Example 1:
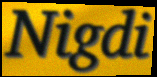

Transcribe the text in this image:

Nigdi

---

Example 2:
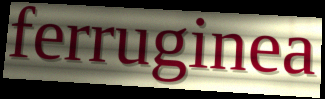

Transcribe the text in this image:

ferruginea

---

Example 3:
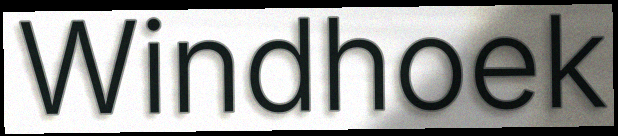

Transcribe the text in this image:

Windhoek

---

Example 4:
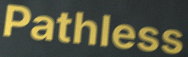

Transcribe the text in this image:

Pathless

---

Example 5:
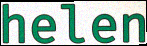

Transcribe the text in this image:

helen